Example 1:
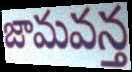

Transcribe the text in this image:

జామవన్త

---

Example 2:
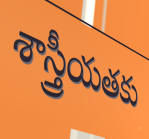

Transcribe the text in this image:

శాస్త్రీయతకు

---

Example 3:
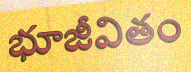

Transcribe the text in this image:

భూజీవితం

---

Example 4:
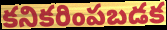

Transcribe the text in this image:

కనికరింపబడక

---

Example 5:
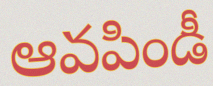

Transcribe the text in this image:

ఆవపిండీ